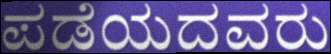
ಪಡೆಯದವರು